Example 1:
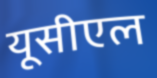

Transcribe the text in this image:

यूसीएल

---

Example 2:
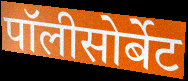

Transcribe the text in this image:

पॉलीसोर्बेट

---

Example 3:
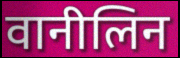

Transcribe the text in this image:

वानीलिन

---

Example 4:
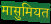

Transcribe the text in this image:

मासुमियत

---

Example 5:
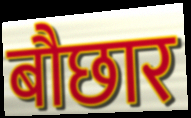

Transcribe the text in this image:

बौछार